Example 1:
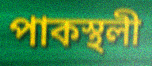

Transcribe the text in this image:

পাকস্থলী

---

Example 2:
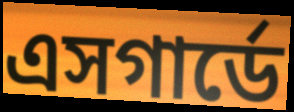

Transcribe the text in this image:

এসগার্ডে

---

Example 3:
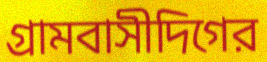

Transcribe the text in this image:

গ্রামবাসীদিগের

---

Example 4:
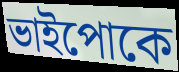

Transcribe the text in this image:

ভাইপোকে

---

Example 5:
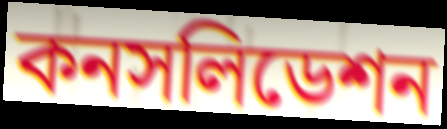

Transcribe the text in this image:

কনসলিডেশন